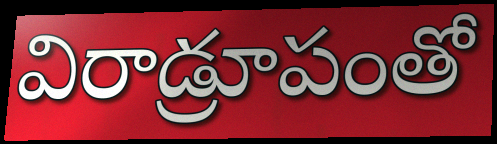
విరాడ్రూపంతో